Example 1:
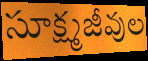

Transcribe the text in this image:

సూక్ష్మజీవుల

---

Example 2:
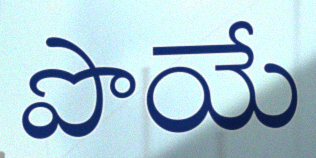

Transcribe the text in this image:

పొయే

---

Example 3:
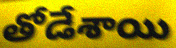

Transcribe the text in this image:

తోడేశాయి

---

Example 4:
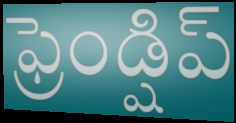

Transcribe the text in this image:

ఫ్రెండ్షిప్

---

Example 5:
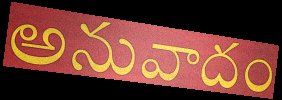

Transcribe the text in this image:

అనువాదం